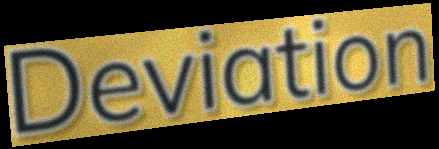
Deviation